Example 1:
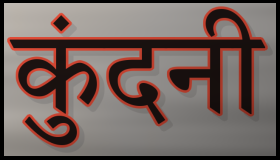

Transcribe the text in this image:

कुंदनी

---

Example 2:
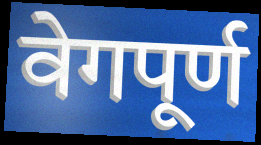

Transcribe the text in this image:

वेगपूर्ण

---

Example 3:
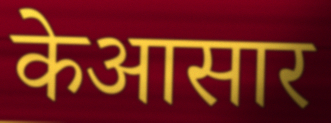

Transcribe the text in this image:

केआसार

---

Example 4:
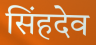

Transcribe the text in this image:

सिंहदेव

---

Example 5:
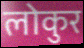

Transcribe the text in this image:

लोकुर